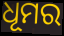
ଧୂମର